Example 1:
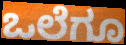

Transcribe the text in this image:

ಒಲೆಗೂ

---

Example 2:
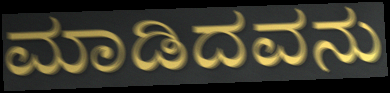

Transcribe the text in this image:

ಮಾಡಿದವನು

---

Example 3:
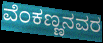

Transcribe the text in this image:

ವೆಂಕಣ್ಣನವರ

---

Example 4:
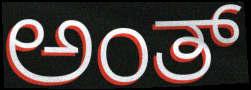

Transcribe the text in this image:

ಅಂತ್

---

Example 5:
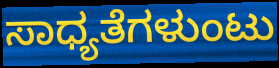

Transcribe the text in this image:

ಸಾಧ್ಯತೆಗಳುಂಟು